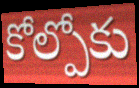
కోల్పోకు